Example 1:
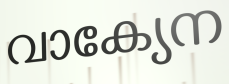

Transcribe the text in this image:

വാക്യേന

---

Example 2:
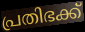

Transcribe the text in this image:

പ്രതിഭക്ക്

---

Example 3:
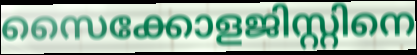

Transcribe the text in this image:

സൈക്കോളജിസ്റ്റിനെ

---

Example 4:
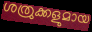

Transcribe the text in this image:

ശത്രുക്കളുമായ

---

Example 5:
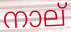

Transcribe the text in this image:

നാല്